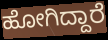
ಹೋಗಿದ್ದಾರೆ